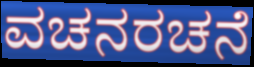
ವಚನರಚನೆ